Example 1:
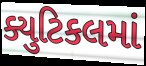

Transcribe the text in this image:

ક્યુટિકલમાં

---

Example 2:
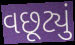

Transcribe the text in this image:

વછૂટ્યું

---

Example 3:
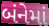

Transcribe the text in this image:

બંનેમાં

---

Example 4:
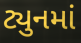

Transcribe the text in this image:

ટ્યુનમાં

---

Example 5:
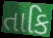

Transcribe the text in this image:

તાકિ